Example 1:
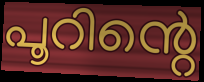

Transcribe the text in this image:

പൂറിന്റെ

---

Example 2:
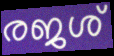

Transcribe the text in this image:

രജശ്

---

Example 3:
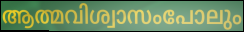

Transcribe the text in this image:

ആത്മവിശ്വാസംപോലും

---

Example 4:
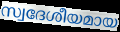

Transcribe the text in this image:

സ്വദേശീയമായ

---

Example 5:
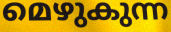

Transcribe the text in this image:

മെഴുകുന്ന